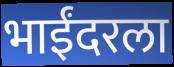
भाईंदरला